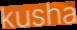
kusha